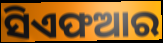
ସିଏଫଆର